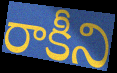
రాకీని